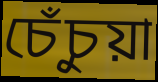
চেঁচুয়া